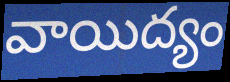
వాయిద్యం